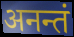
अनन्तं